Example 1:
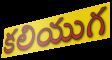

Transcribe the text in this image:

కలియుగ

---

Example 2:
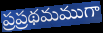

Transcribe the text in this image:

ప్రప్రథమముగా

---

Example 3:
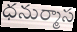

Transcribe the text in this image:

ధనుర్మాస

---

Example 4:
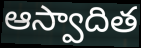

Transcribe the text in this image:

ఆస్వాదిత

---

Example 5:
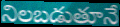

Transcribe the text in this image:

నిలబడుతూనే